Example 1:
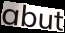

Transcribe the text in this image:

abut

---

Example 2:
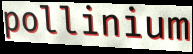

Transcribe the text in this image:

pollinium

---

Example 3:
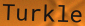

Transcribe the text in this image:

Turkle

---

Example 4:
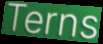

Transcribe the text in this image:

Terns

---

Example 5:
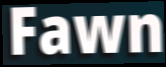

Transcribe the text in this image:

Fawn